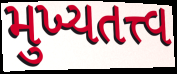
મુખ્યતત્ત્વ